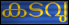
കടവു